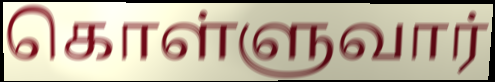
கொள்ளுவார்